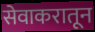
सेवाकरातून